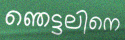
ഞെട്ടലിനെ